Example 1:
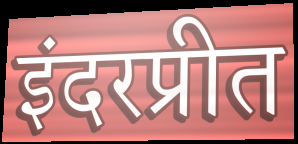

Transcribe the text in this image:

इंदरप्रीत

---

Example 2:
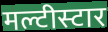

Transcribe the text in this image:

मल्टीस्टार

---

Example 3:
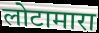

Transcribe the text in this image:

लोटामारा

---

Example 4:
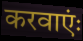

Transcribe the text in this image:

करवाएंः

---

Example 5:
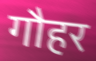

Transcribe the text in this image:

गौहर